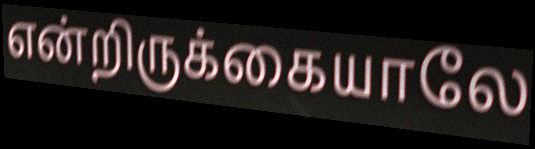
என்றிருக்கையாலே